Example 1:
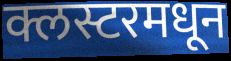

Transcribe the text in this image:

क्लस्टरमधून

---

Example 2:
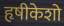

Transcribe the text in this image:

हृषीकेशो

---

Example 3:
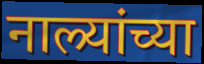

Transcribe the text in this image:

नाल्यांच्या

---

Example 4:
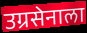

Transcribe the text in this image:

उग्रसेनाला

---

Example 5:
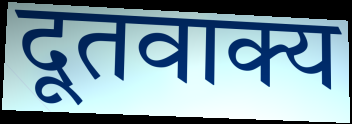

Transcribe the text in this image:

दूतवाक्य